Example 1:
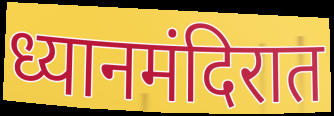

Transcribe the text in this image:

ध्यानमंदिरात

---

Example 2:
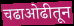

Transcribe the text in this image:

चढाओढीतून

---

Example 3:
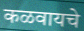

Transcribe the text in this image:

कळवायचे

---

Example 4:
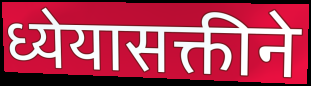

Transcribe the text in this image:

ध्येयासक्तीने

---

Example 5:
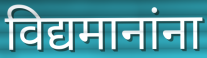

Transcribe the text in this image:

विद्यमानांना